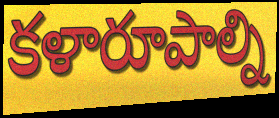
కళారూపాల్ని